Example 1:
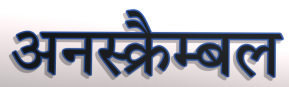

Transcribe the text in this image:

अनस्क्रैम्बल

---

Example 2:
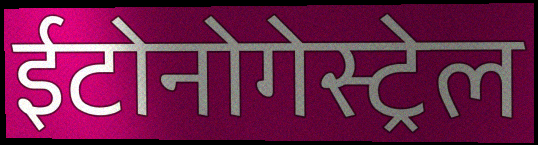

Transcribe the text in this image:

ईटोनोगेस्ट्रेल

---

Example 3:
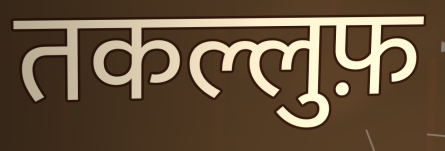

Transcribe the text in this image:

तकल्लुफ़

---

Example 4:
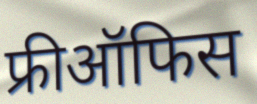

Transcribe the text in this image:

फ्रीऑफिस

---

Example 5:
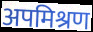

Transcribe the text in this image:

अपमिश्रण